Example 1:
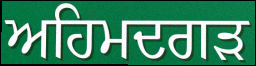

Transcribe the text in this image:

ਅਹਿਮਦਗੜ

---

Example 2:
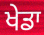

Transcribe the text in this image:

ਖੇਡਾ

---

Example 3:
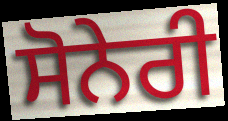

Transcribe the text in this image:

ਸੋਨੇਰੀ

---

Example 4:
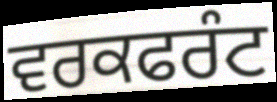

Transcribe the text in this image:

ਵਰਕਫਰੰਟ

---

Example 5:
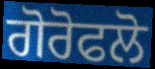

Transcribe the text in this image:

ਗੋਰੋਫਲੋ